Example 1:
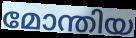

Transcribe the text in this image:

മോന്തിയ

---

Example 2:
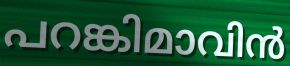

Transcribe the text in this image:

പറങ്കിമാവിൻ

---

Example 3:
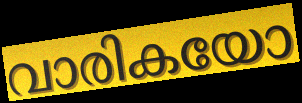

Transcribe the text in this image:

വാരികയോ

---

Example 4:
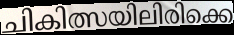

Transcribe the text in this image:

ചികിത്സയിലിരിക്കെ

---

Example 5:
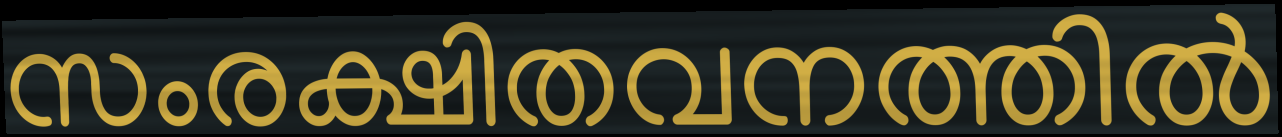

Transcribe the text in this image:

സംരക്ഷിതവനത്തിൽ